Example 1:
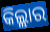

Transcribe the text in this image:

କିଲ୍ଲାର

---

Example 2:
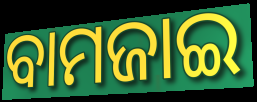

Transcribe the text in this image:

ବାମଜାଇ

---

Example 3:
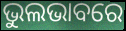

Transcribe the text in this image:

ଭୁଲଭାବରେ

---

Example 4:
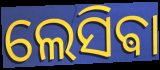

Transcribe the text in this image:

ଲେସିଵା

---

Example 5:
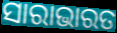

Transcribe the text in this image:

ସାରାଭାରତ